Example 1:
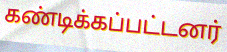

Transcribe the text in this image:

கண்டிக்கப்பட்டனர்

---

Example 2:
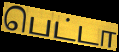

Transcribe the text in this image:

பெட்டா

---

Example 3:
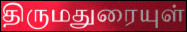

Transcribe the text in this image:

திருமதுரையுள்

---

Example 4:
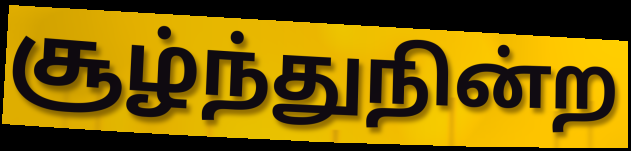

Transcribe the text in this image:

சூழ்ந்துநின்ற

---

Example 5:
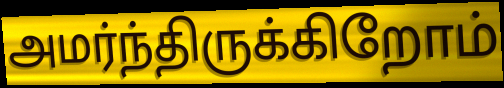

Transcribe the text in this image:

அமர்ந்திருக்கிறோம்